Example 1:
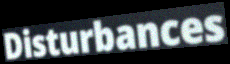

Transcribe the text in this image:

Disturbances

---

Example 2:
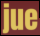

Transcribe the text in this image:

jue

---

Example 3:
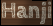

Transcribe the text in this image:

Hanji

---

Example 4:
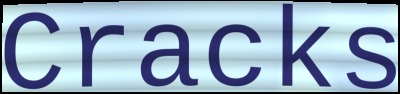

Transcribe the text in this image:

Cracks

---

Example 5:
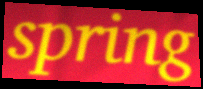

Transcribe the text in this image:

spring